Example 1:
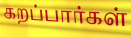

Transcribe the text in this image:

கறப்பார்கள்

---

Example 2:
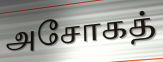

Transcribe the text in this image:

அசோகத்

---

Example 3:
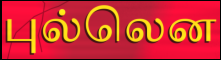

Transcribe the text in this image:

புல்லென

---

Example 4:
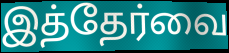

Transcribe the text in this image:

இத்தேர்வை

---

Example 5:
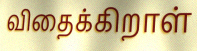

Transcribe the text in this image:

விதைக்கிறாள்